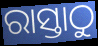
ରାସ୍ତାଠୁ